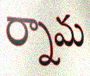
ర్నామ